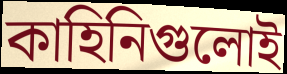
কাহিনিগুলোই